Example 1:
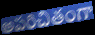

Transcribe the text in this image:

అపరిచితంగా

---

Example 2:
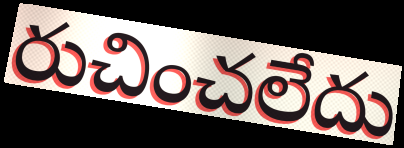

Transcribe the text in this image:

రుచించలేదు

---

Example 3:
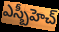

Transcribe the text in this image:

ఎస్బీహెచ్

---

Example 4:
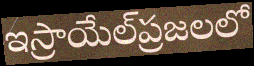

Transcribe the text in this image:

ఇస్రాయేల్‌ప్రజలలో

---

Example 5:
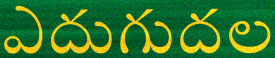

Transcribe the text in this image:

ఎదుగుదల